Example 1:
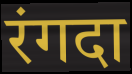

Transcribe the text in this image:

रंगदा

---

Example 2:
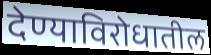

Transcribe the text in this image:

देण्याविरोधातील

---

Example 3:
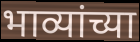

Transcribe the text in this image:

भाव्यांच्या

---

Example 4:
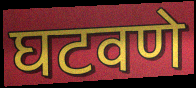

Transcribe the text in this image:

घटवणे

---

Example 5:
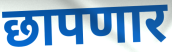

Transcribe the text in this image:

छापणार